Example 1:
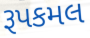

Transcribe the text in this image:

રૂપકમલ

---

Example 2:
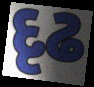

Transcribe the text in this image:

દૃઢ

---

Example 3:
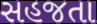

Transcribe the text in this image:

સહજતા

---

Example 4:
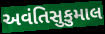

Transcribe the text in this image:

અવંતિસુકુમાલ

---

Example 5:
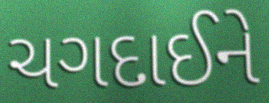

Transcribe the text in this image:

ચગદાઈને